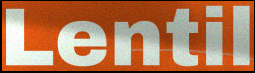
Lentil